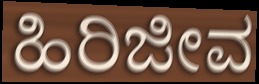
ಹಿರಿಜೀವ